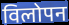
विलोपन